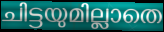
ചിട്ടയുമില്ലാതെ